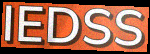
IEDSS